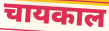
चायकाल